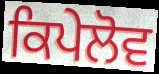
ਕਿਪੇਲੋਵ